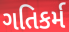
ગતિકર્મ